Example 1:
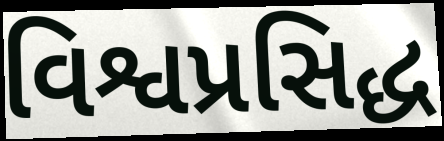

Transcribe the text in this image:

વિશ્વપ્રસિદ્ધ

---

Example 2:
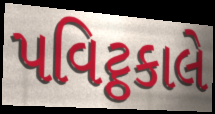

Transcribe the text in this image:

પવિટ્ઠકાલે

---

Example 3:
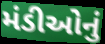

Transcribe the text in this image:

મંડીઓનું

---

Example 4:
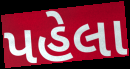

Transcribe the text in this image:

પહેલા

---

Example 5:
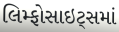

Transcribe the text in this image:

લિમ્ફોસાઇટ્સમાં